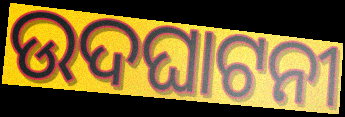
ଉଦଘାଟନୀ